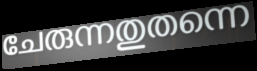
ചേരുന്നതുതന്നെ